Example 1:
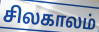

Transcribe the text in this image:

சிலகாலம்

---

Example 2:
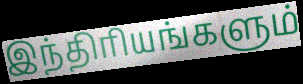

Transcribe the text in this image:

இந்திரியங்களும்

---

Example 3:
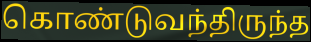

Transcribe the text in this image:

கொண்டுவந்திருந்த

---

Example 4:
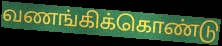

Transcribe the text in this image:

வணங்கிக்கொண்டு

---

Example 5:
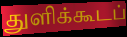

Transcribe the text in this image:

துளிக்கூடப்